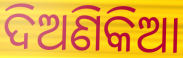
ଦିଅଣିକିଆ